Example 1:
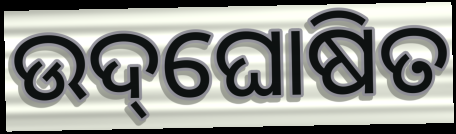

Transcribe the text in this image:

ଉଦ୍‌ଘୋଷିତ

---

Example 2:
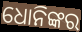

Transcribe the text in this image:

ଧୋନିଙ୍କର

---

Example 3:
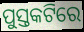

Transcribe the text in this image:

ପୁସ୍ତକଟିରେ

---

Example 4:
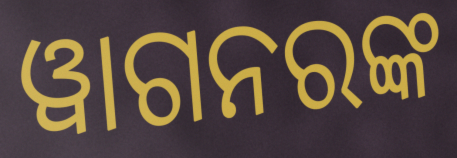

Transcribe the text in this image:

ୱାଗନରଙ୍କ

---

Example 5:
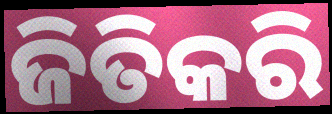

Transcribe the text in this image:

ଜିତିକରି